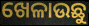
ଖେଳାଉଛୁ